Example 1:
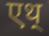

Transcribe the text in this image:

एथ्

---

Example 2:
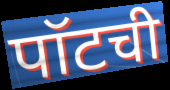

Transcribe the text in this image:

पॉटची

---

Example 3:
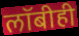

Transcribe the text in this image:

लॉबीही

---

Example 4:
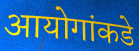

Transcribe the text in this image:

आयोगांकडे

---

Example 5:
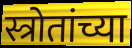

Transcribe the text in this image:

स्त्रोतांच्या